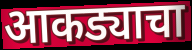
आकड्याचा